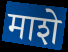
माशे